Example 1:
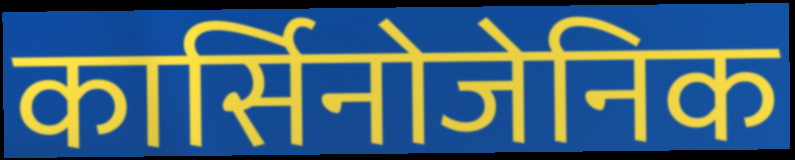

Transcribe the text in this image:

कार्सिनोजेनिक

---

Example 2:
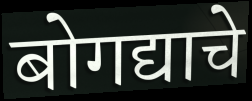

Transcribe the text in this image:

बोगद्याचे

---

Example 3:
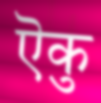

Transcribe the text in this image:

ऎकु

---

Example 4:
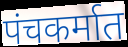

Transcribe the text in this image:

पंचकर्मात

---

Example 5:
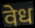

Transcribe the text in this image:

वेध